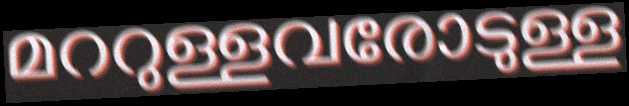
മററുള്ളവരോടുള്ള